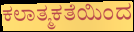
ಕಲಾತ್ಮಕತೆಯಿಂದ